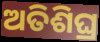
ଅତିଶିଘ୍ର